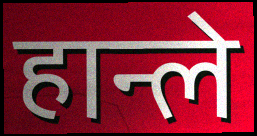
हान्ले